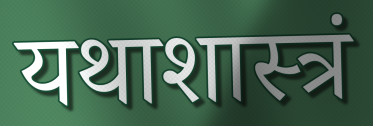
यथाशास्त्रं